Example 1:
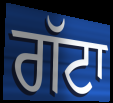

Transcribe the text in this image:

ਗੱਟਾ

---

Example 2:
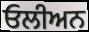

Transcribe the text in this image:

ਓਲੀਅਨ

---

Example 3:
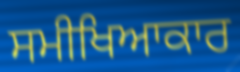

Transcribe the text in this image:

ਸਮੀਖਿਆਕਾਰ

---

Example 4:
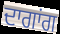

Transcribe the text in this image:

ਦਾਗਾਂਗ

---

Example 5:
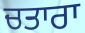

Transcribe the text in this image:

ਚਤਾਰਾ